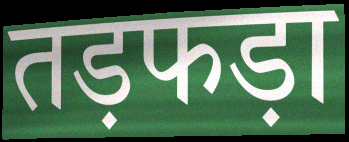
तड़फड़ा